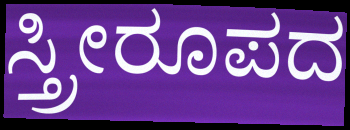
ಸ್ತ್ರೀರೂಪದ